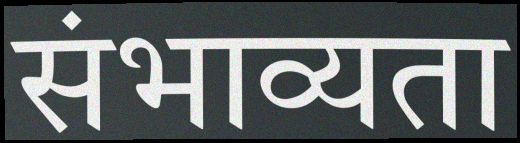
संभाव्यता